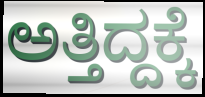
ಅತ್ತಿದ್ದಕ್ಕೆ